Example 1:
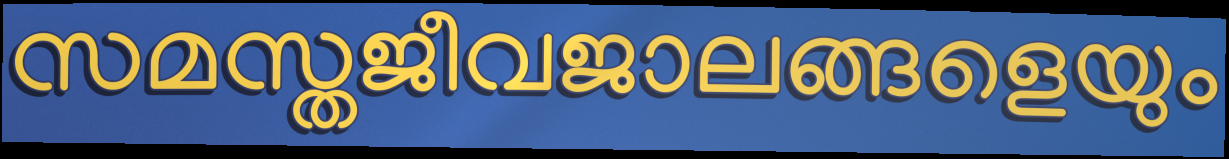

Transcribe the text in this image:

സമസ്തജീവജാലങ്ങളെയും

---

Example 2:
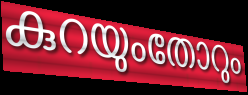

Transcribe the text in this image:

കുറയുംതോറും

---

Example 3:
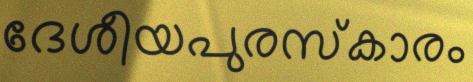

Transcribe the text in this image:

ദേശീയപുരസ്കാരം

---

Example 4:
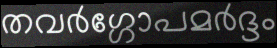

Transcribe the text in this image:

തവർഗ്ഗോപമർദ്ദം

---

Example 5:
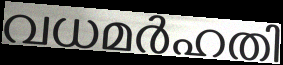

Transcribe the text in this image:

വധമർഹതി